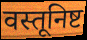
वस्तूनिष्ट